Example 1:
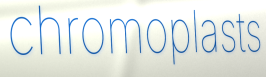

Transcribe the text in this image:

chromoplasts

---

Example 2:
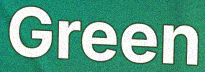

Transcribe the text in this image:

Green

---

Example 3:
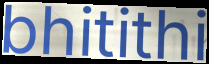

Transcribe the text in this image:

bhitithi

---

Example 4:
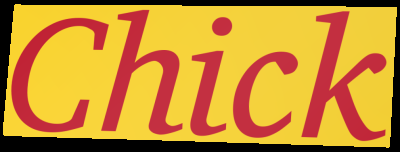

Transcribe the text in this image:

Chick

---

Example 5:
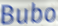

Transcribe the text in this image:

Bubo